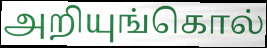
அறியுங்கொல்